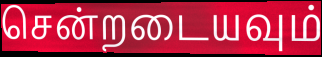
சென்றடையவும்